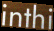
inthi